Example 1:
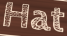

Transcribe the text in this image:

Hat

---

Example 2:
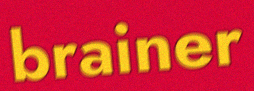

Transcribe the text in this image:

brainer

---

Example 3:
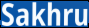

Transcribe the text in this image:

Sakhru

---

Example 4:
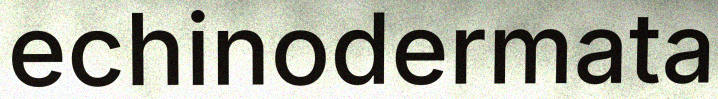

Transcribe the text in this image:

echinodermata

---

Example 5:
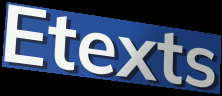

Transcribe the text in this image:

Etexts